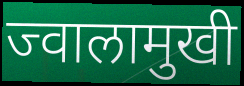
ज्वालामुखी